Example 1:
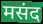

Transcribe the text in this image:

मसंद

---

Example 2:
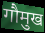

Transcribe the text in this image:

गौमुख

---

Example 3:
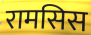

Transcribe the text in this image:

रामसिस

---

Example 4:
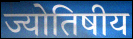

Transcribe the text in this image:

ज्योतिषीय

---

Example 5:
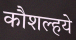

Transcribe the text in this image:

कौशल्हये